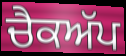
ਚੈਕਅੱਪ